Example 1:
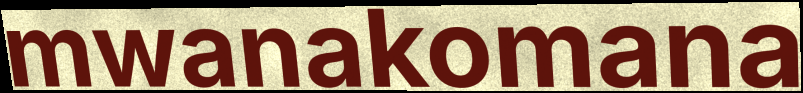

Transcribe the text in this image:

mwanakomana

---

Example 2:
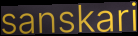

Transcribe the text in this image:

sanskari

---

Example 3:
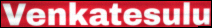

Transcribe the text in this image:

Venkatesulu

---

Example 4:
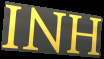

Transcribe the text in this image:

INH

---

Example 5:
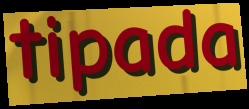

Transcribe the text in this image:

tipada